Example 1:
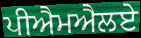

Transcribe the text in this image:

ਪੀਐਮਐਲਏ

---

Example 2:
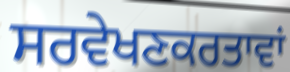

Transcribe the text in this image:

ਸਰਵੇਖਣਕਰਤਾਵਾਂ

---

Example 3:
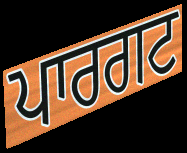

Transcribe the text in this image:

ਪਾਰਗਟ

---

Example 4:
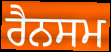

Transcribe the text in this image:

ਰੈਨਸਮ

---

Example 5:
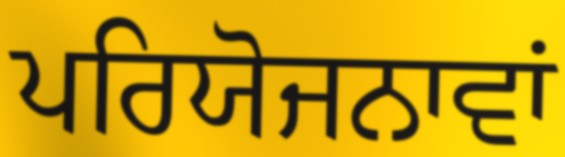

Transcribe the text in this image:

ਪਰਿਯੋਜਨਾਵਾਂ